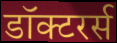
डॉक्टरर्स